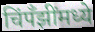
चिंपँझींमध्ये